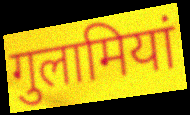
गुलामियां